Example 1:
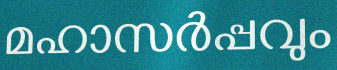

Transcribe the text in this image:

മഹാസർപ്പവും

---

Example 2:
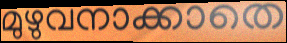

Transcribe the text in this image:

മുഴുവനാക്കാതെ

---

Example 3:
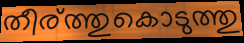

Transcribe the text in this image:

തീര്ത്തുകൊടുത്തു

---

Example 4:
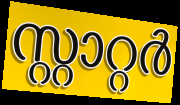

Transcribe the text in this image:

സ്റ്റാറ്റർ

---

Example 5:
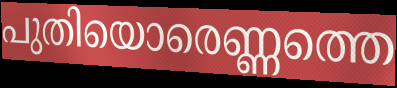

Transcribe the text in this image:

പുതിയൊരെണ്ണത്തെ